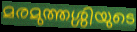
മരമുത്തശ്ശിയുടെ